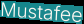
Mustafee